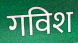
गविश